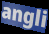
angli